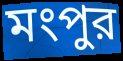
মংপুর